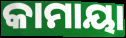
କାମାୟା